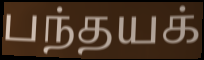
பந்தயக்